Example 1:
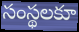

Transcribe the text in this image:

సంస్థలకూ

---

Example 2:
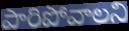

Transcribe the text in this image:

పారిపోవాలని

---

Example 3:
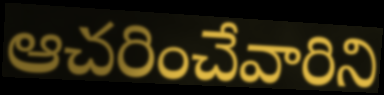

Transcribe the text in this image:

ఆచరించేవారిని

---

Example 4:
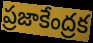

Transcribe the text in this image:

ప్రజాకేంద్రక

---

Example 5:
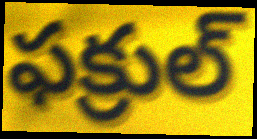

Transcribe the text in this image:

ఫక్రుల్